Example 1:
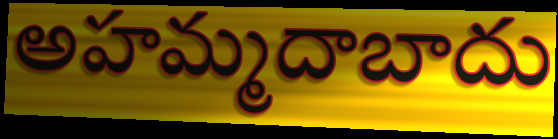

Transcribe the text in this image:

అహమ్మదాబాదు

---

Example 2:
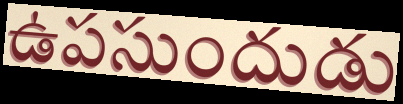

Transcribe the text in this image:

ఉపసుందుడు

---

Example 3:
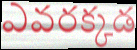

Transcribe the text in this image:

ఎవరక్కడ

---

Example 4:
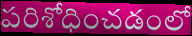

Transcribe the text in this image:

పరిశోధించడంలో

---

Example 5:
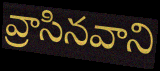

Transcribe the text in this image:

వ్రాసినవాని